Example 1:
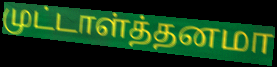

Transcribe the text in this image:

முட்டாள்த்தனமா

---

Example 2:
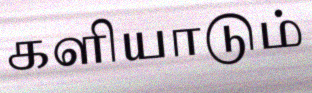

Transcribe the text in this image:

களியாடும்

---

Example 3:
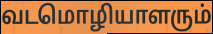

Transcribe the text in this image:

வடமொழியாளரும்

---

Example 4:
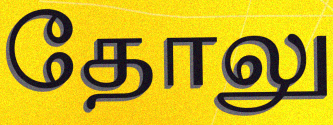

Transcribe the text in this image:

தோலு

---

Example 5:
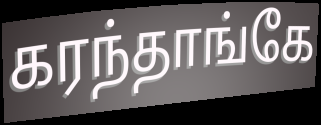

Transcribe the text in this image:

கரந்தாங்கே